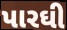
પારઘી